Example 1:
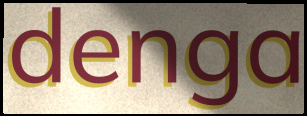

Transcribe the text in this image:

denga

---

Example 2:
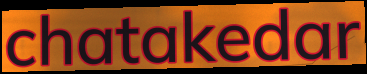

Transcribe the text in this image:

chatakedar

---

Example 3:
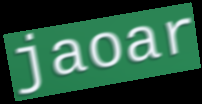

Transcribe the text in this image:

jaoar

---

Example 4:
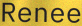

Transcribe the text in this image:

Renee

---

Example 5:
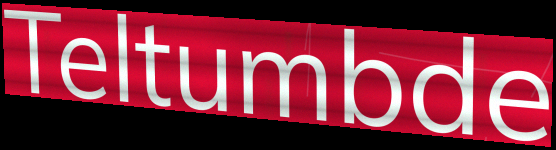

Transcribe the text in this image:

Teltumbde